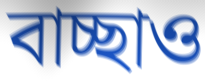
বাচ্ছাও